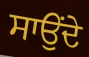
ਸਾਉਂਦੇ